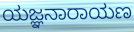
ಯಜ್ಞನಾರಾಯಣ